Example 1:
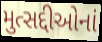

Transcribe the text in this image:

મુત્સદ્દીઓનાં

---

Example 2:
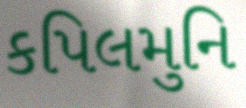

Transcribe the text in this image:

કપિલમુનિ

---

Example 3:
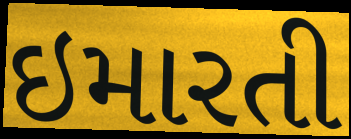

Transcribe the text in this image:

ઇમારતી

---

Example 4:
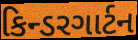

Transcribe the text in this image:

કિન્ડરગાર્ટન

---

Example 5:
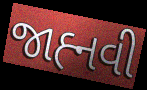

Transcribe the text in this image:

જાહ્‍નવી